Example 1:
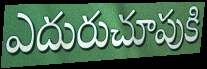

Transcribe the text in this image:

ఎదురుచూపుకి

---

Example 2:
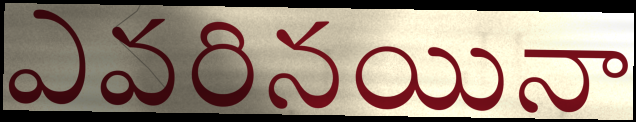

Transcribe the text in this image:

ఎవరినయినా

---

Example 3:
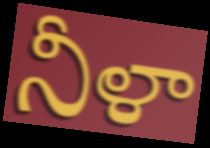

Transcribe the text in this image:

నీళా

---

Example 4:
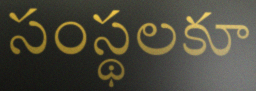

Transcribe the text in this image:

సంస్థలకూ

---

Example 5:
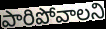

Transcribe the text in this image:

పారిపోవాలని